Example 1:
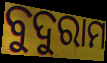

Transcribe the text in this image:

ବୁଦୁରାମ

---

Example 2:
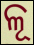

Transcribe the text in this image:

ଳୂ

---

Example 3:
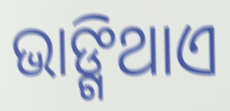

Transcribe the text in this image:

ଭାଙ୍ଗିଥାଏ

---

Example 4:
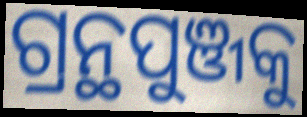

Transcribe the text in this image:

ଗ୍ରନ୍ଥପୁଞ୍ଜକୁ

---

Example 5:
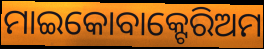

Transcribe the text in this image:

ମାଇକୋବାକ୍ଟେରିଅମ